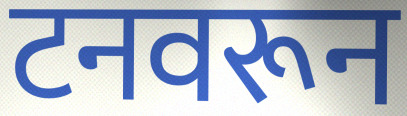
टनवरून